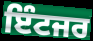
ਇੰਟਜਰ